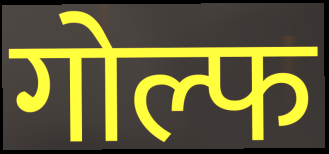
गोल्फ